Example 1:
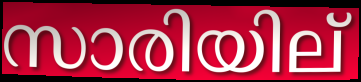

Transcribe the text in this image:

സാരിയില്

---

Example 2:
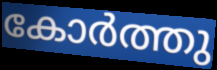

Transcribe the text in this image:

കോർത്തു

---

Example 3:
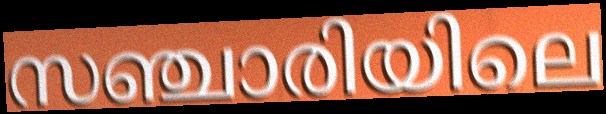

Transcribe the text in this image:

സഞ്ചാരിയിലെ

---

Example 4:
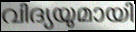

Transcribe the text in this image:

വിദ്യയുമായി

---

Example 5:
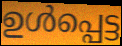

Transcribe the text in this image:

ഉൾപ്പെട്ട